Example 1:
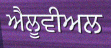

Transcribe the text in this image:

ਐਲੂਵੀਅਲ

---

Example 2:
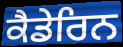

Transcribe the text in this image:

ਕੈਡੇਰਿਨ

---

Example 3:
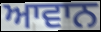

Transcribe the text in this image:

ਆਵਾਨ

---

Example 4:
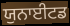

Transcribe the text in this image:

ਯੁਨਾਈਟਡ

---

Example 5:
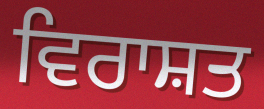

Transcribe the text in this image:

ਵਿਰਾਸ਼ਤ